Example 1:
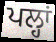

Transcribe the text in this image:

ਪਲ੍ਹਾਂ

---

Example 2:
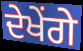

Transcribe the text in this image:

ਦੇਖੇਂਗੇ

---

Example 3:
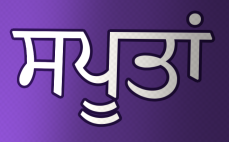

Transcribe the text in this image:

ਸਪੂਤਾਂ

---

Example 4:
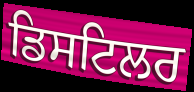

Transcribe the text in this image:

ਡਿਸਟਿਲਰ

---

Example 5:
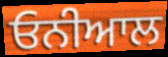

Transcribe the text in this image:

ਓਨੀਆਲ